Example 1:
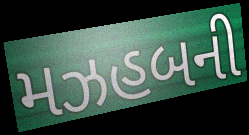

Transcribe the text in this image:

મઝહબની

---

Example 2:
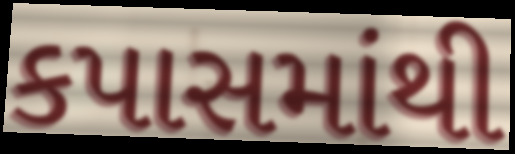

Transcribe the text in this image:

કપાસમાંથી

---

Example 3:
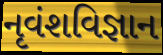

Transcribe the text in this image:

નૃવંશવિજ્ઞાન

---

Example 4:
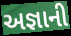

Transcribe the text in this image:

અજ્ઞાની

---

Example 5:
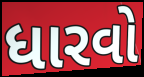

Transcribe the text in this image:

ધારવો